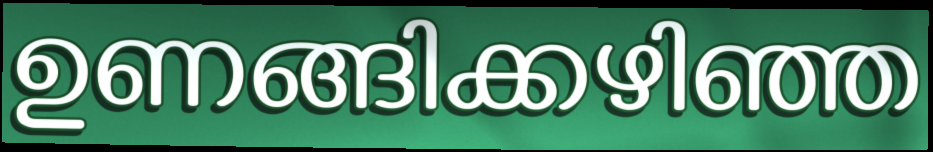
ഉണങ്ങിക്കഴിഞ്ഞ